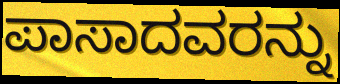
ಪಾಸಾದವರನ್ನು